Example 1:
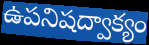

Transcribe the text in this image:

ఉపనిషద్వాక్యం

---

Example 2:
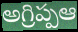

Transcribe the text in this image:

అగ్రిప్పఆ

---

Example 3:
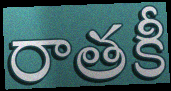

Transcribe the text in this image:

రాతకీ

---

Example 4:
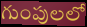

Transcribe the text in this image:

గుంపులలో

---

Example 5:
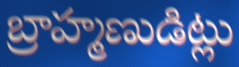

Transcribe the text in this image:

బ్రాహ్మణుడిట్లు